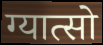
ग्यात्सो